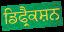
ਡਿਫ੍ਰੈਕਸ਼ਨ